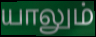
யாலும்